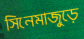
সিনেমাজুড়ে